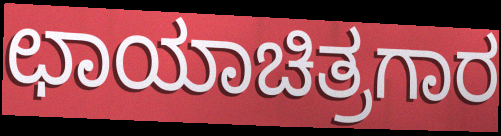
ಛಾಯಾಚಿತ್ರಗಾರ